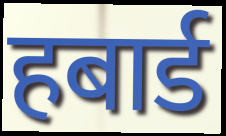
हबार्ड